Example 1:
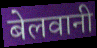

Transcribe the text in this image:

बेलवानी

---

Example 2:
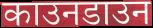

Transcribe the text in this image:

काउनडाउन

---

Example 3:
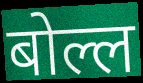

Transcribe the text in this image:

बोल्ल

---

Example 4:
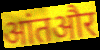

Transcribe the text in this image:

आंतऔर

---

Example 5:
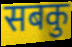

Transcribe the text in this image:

सबकु